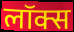
लॉक्स